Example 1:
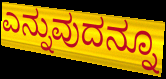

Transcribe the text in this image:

ಎನ್ನುವುದನ್ನೂ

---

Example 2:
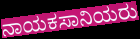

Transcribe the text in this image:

ನಾಯಕಸಾನಿಯರು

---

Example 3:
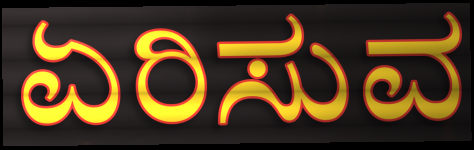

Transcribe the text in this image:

ಏರಿಸುವ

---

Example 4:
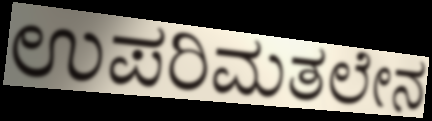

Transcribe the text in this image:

ಉಪರಿಮತಲೇನ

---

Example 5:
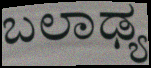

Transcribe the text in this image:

ಬಲಾಢ್ಯ